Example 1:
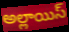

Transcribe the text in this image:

అల్లాయిస్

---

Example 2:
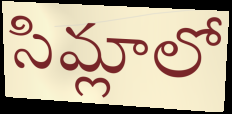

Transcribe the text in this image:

సిమ్లాలో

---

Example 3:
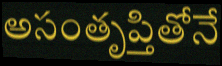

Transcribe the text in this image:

అసంతృప్తితోనే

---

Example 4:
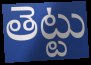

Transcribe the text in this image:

తెట్టు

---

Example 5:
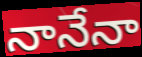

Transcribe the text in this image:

నానేనా